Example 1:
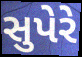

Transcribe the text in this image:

સુપેરે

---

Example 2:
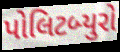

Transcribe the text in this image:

પોલિટબ્યુરો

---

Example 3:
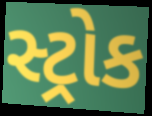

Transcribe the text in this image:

સ્ટ્રોક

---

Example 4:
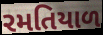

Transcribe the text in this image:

રમતિયાળ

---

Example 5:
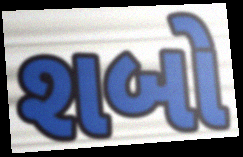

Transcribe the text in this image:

શબો